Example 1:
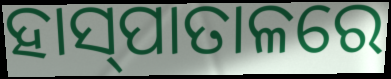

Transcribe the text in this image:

ହାସ୍‍ପାତାଳରେ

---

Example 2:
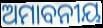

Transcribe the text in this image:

ଅମାବନୀୟ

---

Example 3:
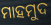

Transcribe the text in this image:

ମାହମୁଦ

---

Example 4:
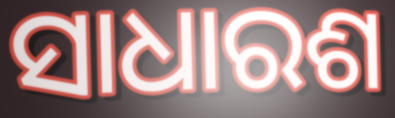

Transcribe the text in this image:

ସାଧାରଶ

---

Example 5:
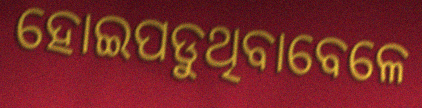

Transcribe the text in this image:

ହୋଇପଡୁଥିବାବେଳେ